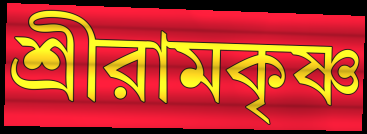
শ্রীরামকৃষ্ণ